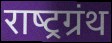
राष्ट्रग्रंथ